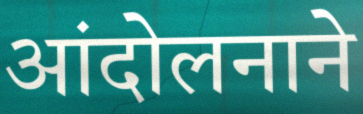
आंदोलनाने